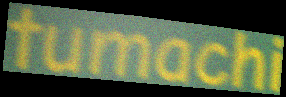
tumachi